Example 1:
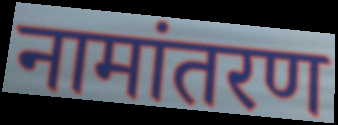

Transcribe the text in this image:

नामांतरण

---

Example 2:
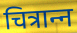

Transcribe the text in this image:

चित्रान्न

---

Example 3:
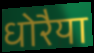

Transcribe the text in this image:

धोरैया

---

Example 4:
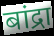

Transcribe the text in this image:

बांद्रा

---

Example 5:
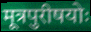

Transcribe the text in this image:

मूत्रपुरीषयोः